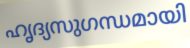
ഹൃദ്യസുഗന്ധമായി